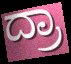
ದ್ರಾ